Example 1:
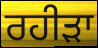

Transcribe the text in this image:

ਰਹੀੜਾ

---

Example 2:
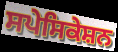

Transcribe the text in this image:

ਸਪੇਸਿਕੇਸ਼ਨ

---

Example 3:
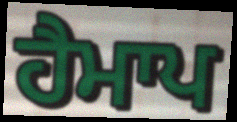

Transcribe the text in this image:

ਹੈਮਾਪ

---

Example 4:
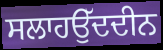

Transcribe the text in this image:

ਸਲਾਹਉੱਦਦੀਨ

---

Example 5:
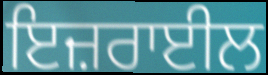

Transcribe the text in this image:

ਇਜ਼ਰਾਈਲ